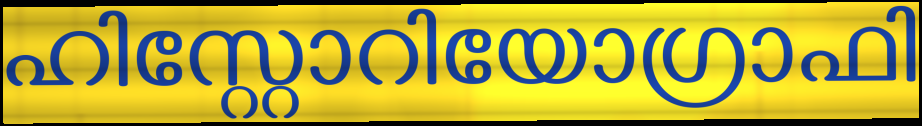
ഹിസ്റ്റോറിയോഗ്രാഫി